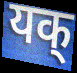
यक्